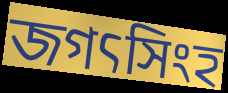
জগৎসিংহ